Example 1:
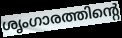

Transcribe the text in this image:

ശൃംഗാരത്തിന്റെ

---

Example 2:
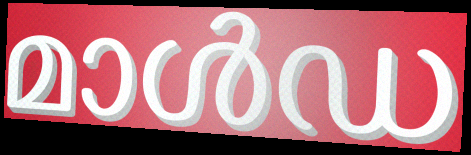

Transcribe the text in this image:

മാൾഡ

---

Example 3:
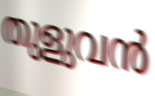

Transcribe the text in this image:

തുളുവൻ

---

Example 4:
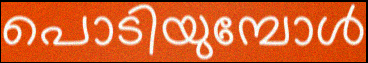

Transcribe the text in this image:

പൊടിയുമ്പോൾ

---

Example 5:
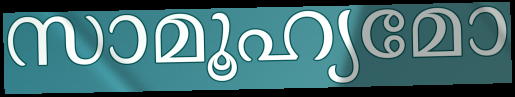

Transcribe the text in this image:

സാമൂഹ്യമോ